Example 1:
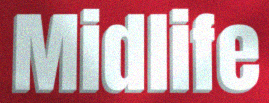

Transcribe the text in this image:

Midlife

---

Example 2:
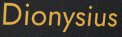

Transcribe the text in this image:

Dionysius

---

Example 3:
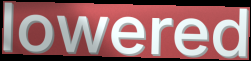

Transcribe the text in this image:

lowered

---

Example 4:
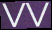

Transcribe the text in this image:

VV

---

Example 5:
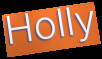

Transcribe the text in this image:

Holly